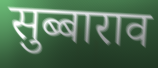
सुब्बाराव